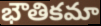
భౌతికమా